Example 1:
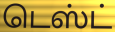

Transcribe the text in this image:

டெஸ்ட்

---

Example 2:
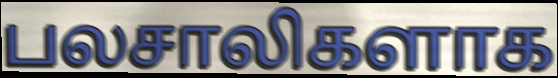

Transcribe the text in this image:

பலசாலிகளாக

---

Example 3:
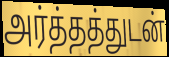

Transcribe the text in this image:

அர்த்தத்துடன்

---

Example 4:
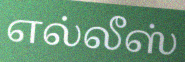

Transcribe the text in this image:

எல்லீஸ்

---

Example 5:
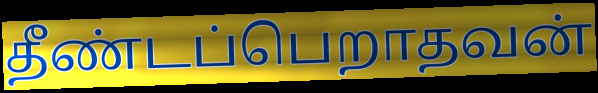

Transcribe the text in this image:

தீண்டப்பெறாதவன்